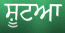
ਸ਼ੂਟਆ